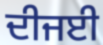
ਦੀਜਈ